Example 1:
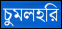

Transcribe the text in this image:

চুমলহরি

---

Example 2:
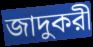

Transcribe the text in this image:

জাদুকরী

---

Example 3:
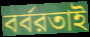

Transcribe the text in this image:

বর্বরতাই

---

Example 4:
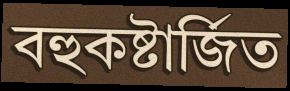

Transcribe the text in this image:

বহুকষ্টার্জিত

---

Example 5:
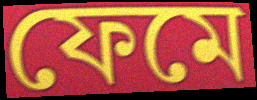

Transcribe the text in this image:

ফেমে